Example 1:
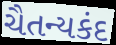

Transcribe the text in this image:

ચૈતન્યકંદ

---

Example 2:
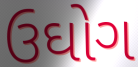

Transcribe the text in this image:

ઉઘોગ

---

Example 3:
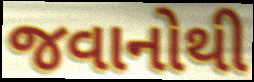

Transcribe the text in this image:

જવાનોથી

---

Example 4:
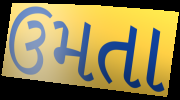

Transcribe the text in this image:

ઉમતા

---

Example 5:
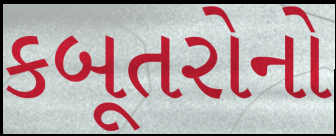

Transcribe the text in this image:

કબૂતરોનો